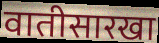
वातीसारखा